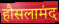
हौसलामंद